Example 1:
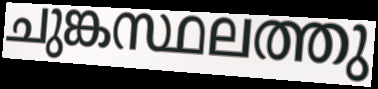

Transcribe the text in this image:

ചുങ്കസ്ഥലത്തു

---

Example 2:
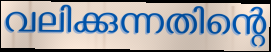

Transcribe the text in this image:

വലിക്കുന്നതിന്റെ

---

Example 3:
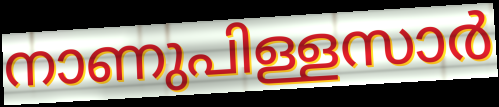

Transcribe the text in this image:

നാണുപിള്ളസാർ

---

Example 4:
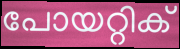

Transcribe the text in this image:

പോയറ്റിക്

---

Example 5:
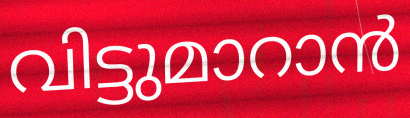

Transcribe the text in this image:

വിട്ടുമാറാൻ